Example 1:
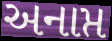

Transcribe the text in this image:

અનાપ્ત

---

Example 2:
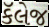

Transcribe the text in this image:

કૅલેજ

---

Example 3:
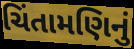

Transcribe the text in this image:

ચિંતામણિનું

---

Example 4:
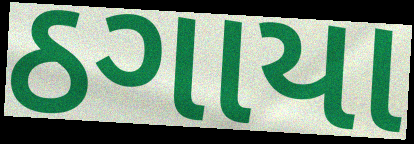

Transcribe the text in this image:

ઠગાયા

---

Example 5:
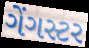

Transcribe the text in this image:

ગેંગસ્ટર